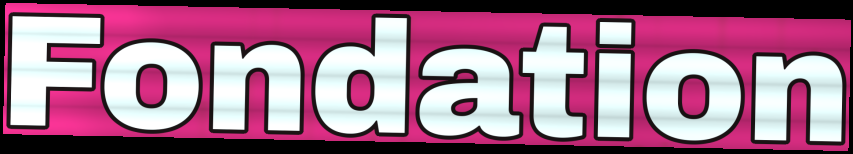
Fondation